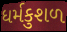
ધર્મકુશળ